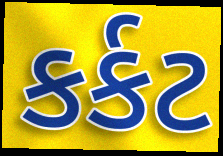
કર્કટ